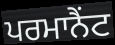
ਪਰਮਾਨੈਂਟ